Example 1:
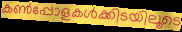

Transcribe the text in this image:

കൺപ്പോളകൾക്കിടയിലൂടെ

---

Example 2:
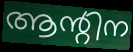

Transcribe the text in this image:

ആന്റിന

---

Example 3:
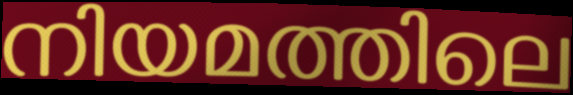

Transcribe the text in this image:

നിയമത്തിലെ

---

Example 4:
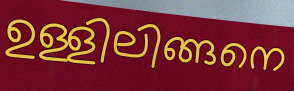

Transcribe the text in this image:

ഉള്ളിലിങ്ങനെ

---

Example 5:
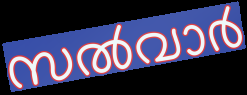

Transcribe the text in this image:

സൽവാർ